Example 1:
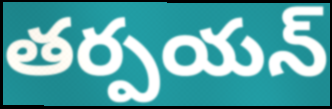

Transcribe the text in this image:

తర్పయన్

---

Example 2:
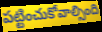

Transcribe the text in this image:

పట్టించుకోవాల్సింది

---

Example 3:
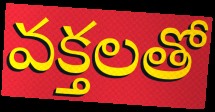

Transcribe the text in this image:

వక్తలతో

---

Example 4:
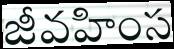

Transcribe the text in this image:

జీవహింస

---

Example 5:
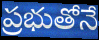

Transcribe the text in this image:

ప్రభుతోనే